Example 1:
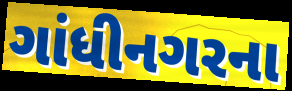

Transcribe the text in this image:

ગાંધીનગરના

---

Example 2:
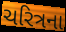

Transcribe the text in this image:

ચરિત્રના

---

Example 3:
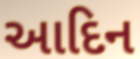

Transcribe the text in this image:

આદિન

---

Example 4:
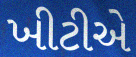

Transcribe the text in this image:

ખીટીએ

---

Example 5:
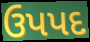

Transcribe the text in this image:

ઉપપદ